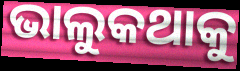
ଭାଲୁକଥାକୁ